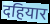
दहियार